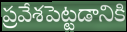
ప్రవేశపెట్టడానికి